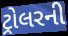
ટ્રોલરની